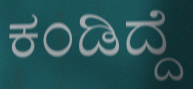
ಕಂಡಿದ್ದೆ